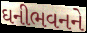
ઘનીભવનને